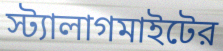
স্ট্যালাগমাইটের